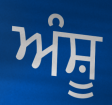
ਅੰਸ਼ੂ